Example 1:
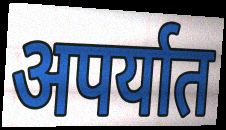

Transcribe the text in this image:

अपर्यात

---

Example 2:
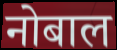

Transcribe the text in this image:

नोबाल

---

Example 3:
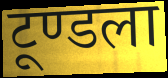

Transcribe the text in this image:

टूण्डला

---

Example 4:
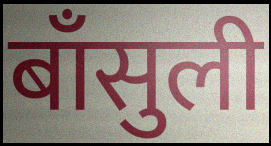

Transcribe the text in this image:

बाँसुली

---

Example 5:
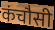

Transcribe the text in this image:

कंचौसी